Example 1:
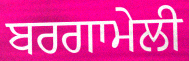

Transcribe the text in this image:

ਬਰਗਾਮੇਲੀ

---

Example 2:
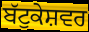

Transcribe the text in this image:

ਬੱਟੁਕੇਸ਼ਵਰ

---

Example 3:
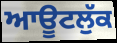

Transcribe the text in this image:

ਆਊਟਲੁੱਕ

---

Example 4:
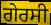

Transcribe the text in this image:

ਗੇਰਸੀ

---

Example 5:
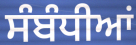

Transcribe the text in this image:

ਸੰਬੰਧੀਆਂ